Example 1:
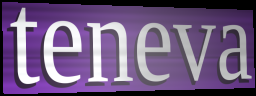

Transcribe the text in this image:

teneva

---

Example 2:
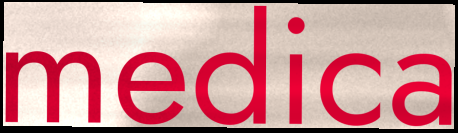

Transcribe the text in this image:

medica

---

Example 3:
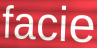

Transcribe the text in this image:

facie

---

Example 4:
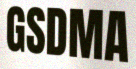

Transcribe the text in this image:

GSDMA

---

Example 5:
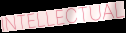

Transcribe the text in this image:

INTELLECTUAL